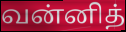
வன்னித்